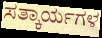
ಸತ್ಕಾರ್ಯಗಳ